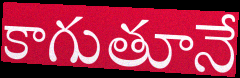
కాగుతూనే